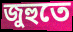
জুহুতে